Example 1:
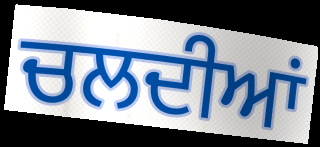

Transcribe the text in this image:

ਚਲਦੀਆਂ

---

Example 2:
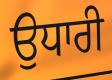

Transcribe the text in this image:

ਉਧਾਰੀ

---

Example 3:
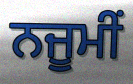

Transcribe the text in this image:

ਨਜੂਮੀਂ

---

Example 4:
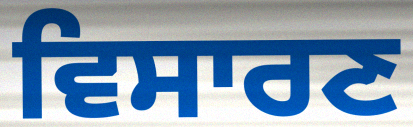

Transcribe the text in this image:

ਵਿਸਾਰਣ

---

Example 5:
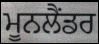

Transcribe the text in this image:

ਮੂਨਲੈਂਡਰ